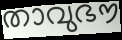
താവുഭൗ